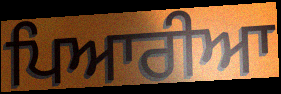
ਪਿਆਰੀਆ